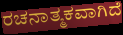
ರಚನಾತ್ಮಕವಾಗಿದೆ